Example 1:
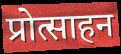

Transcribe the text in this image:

प्रोत्‍साहन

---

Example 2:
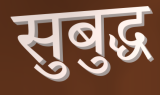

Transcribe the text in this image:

सुबुद्ध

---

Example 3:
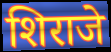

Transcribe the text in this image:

शिराजे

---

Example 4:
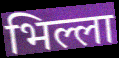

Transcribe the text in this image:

भिल्ला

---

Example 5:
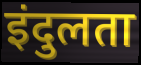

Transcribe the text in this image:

इंदुलता